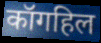
कॉगहिल